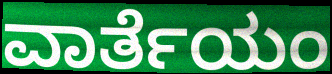
ವಾರ್ತೆಯಂ